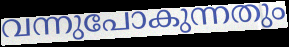
വന്നുപോകുന്നതും